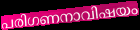
പരിഗണനാവിഷയം